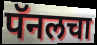
पॅनलचा